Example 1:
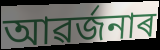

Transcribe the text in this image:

আৱৰ্জনাৰ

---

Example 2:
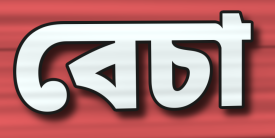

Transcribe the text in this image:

বেচা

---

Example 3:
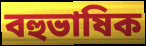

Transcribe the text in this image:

বহুভাষিক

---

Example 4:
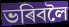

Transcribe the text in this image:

ভৰিবলৈ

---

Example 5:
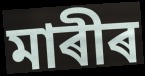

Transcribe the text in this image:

মাৰীৰ